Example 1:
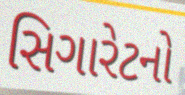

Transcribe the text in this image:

સિગારેટનો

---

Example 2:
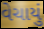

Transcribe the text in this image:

વેચાયું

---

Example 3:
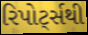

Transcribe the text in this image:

રિપોર્ટ્સથી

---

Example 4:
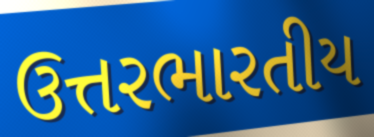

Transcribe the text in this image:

ઉત્તરભારતીય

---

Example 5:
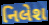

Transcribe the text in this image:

નિલેશ